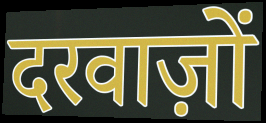
दरवाज़ों